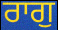
ਰਾਗੁ